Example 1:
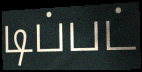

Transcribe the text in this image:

டிப்பட்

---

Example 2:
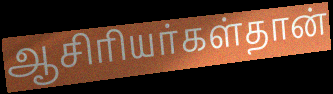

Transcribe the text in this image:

ஆசிரியர்கள்தான்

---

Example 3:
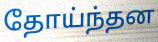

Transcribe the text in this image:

தோய்ந்தன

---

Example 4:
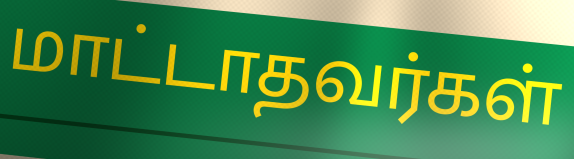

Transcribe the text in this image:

மாட்டாதவர்கள்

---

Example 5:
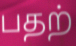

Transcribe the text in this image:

பதற்